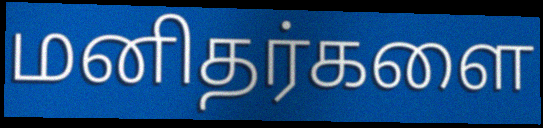
மனிதர்களை